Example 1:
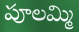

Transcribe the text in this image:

పూలమ్మి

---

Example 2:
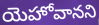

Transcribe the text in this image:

యెహోవానని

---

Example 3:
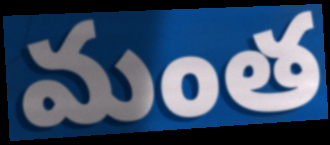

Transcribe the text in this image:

మంత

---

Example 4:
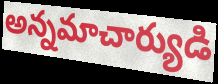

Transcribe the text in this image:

అన్నమాచార్యుడి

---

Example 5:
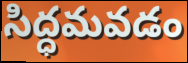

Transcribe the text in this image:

సిద్ధమవడం